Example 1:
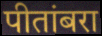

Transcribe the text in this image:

पीतांबरा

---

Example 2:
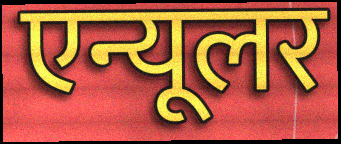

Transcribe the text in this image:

एन्यूलर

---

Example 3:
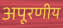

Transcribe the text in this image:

अपूरणीय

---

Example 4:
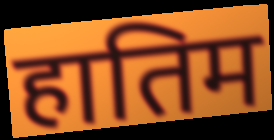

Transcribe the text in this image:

हातिम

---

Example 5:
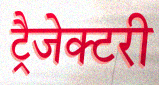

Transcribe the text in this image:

ट्रैजेक्‍टरी